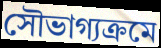
সৌভাগ্যক্রমে